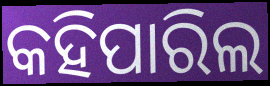
କହିପାରିଲ